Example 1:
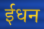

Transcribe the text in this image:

ईधन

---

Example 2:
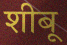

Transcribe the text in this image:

शीबू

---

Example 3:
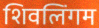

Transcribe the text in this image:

शिवलिंगम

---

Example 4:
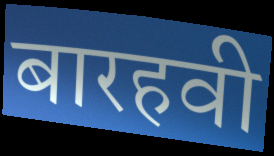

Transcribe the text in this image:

बारहवी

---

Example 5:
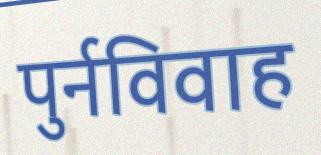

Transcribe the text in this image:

पुर्नविवाह